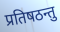
प्रतिषठन्तु